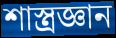
শাস্ত্রজ্ঞান